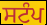
ਸਟੰਪ